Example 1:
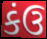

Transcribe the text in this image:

કંઉ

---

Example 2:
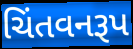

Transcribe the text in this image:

ચિંતવનરૂપ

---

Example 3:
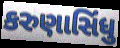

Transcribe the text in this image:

કરુણાસિંધુ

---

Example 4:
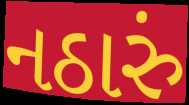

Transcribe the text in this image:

નઠારું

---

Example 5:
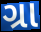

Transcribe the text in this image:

ગ્રા